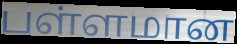
பள்ளமான